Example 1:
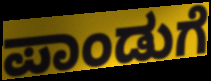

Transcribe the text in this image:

ಪಾಂಡುಗೆ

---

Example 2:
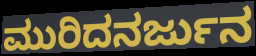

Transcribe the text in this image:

ಮುರಿದನರ್ಜುನ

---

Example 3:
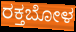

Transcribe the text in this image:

ರಕ್ತಬೋಳ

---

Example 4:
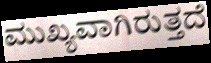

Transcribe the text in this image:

ಮುಖ್ಯವಾಗಿರುತ್ತದೆ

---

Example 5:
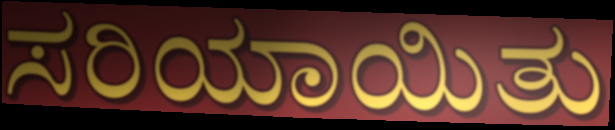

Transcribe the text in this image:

ಸರಿಯಾಯಿತು